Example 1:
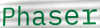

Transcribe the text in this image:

Phaser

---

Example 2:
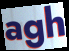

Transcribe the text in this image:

agh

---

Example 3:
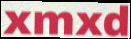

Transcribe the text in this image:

xmxd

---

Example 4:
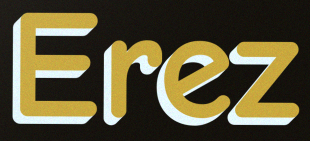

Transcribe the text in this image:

Erez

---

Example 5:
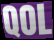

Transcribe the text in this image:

QOL